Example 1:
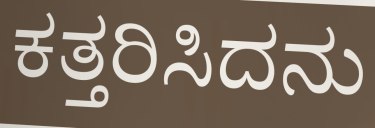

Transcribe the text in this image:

ಕತ್ತರಿಸಿದನು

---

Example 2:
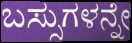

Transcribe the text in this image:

ಬಸ್ಸುಗಳನ್ನೇ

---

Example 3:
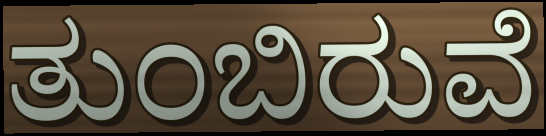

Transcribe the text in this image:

ತುಂಬಿರುವೆ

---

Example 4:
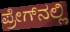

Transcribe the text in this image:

ಪ್ರೇಗ್‌ನಲ್ಲಿ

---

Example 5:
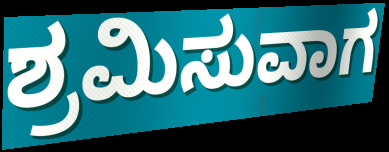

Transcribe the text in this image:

ಶ್ರಮಿಸುವಾಗ